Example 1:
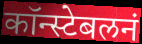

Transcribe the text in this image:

कॉन्स्टेबलनं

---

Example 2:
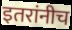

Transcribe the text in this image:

इतरांनीच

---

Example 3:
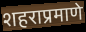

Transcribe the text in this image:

शहराप्रमाणे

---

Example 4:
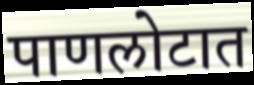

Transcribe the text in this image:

पाणलोटात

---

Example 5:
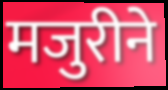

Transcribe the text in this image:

मजुरीने